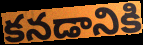
కనడానికి